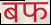
बफ